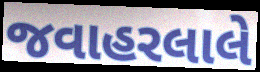
જવાહરલાલે